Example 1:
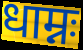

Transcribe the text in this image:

धाम्नः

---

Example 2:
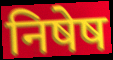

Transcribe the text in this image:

निषेष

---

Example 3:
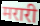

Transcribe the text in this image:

मरारी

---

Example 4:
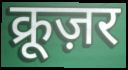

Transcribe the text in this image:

क्रूज़र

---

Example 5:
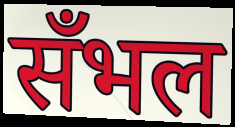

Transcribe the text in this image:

सँभल